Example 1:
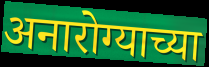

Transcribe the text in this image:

अनारोग्याच्या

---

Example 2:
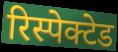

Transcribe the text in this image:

रिस्पेक्टेड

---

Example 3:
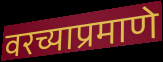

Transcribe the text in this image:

वरच्याप्रमाणे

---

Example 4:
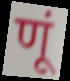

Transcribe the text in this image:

णूं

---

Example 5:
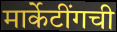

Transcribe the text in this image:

मार्केटींगची